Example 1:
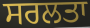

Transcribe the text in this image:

ਸਰਲਤਾ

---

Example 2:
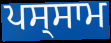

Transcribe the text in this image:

ਪਸ੍ਸਾਮ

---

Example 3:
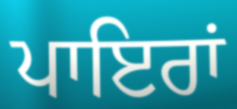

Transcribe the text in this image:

ਪਾਇਰਾਂ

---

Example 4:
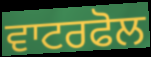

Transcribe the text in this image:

ਵਾਟਰਫੋਲ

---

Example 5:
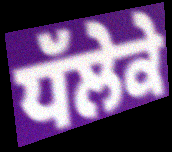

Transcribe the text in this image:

ਧੱਲੇਕੇ